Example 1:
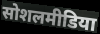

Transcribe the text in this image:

सोशलमीडिया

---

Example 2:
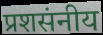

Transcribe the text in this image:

प्रशसंनीय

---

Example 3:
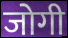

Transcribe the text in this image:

जोगी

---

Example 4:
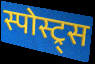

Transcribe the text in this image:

स्पोस्ट्र्स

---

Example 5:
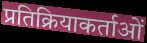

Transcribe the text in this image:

प्रतिक्रियाकर्ताओं